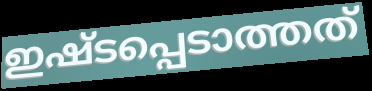
ഇഷ്ടപ്പെടാത്തത്